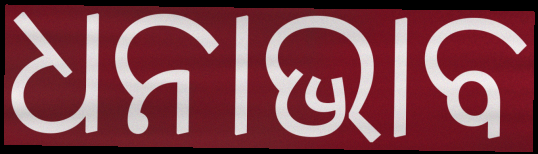
ଧନାଭାବ